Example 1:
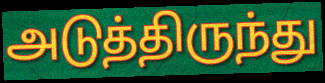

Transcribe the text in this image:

அடுத்திருந்து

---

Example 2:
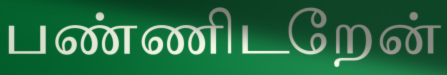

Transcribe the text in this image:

பண்ணிடறேன்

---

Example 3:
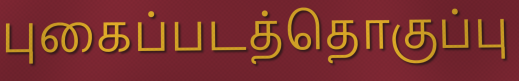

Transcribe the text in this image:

புகைப்படத்தொகுப்பு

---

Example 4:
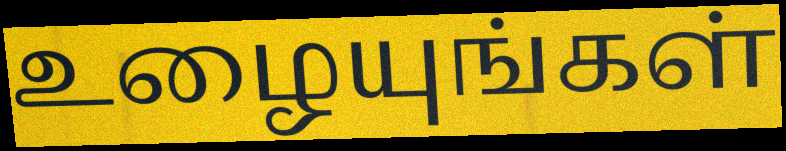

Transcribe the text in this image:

உழையுங்கள்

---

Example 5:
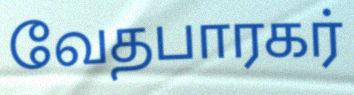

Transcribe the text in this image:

வேதபாரகர்